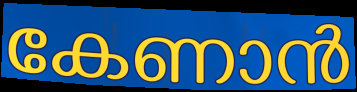
കേണാൻ